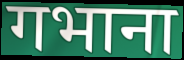
गभाना